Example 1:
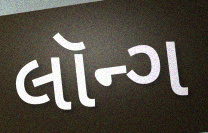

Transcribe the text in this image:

લૉન્ગ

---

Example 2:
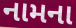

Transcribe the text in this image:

નામના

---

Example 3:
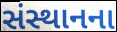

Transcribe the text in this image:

સંસ્થાનના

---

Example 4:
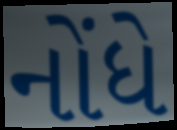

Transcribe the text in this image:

નોંધે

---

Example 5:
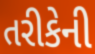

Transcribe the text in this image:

તરીકેની